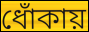
ধোঁকায়